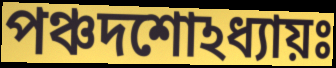
পঞ্চদশোঽধ্যায়ঃ